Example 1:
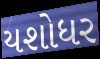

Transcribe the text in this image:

યશોધર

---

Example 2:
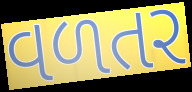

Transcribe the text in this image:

વળતર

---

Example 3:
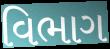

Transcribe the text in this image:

વિભાગ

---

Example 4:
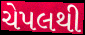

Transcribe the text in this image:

ચેપલથી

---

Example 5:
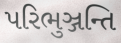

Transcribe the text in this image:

પરિભુઞ્જન્તિ